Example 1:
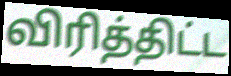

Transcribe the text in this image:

விரித்திட்ட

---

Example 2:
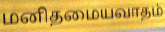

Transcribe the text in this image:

மனிதமையவாதம்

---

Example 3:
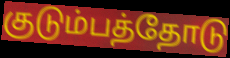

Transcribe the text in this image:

குடும்பத்தோடு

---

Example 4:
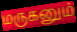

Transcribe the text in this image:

மருகனும்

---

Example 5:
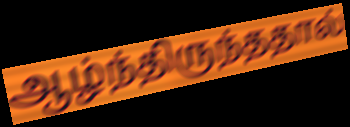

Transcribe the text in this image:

ஆழ்ந்திருந்ததால்